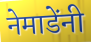
नेमाडेंनी